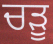
ਚੜੂ